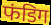
फंडिग